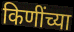
किणींच्या